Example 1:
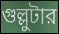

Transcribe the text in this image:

গুল্লুটার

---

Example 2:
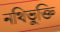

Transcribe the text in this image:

নথিভুক্তি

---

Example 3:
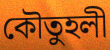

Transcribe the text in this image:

কৌতুহলী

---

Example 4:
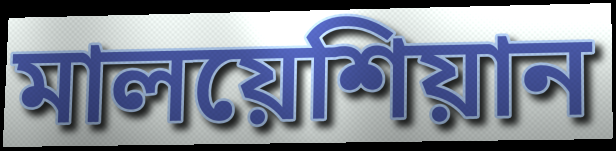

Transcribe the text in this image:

মালয়েশিয়ান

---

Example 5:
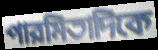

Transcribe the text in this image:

পারমিতাদিকে